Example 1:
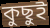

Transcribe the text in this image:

কুছুই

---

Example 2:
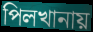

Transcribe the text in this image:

পিলখানায়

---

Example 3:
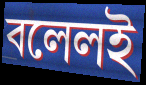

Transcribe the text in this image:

বলেলই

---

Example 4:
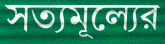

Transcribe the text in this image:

সত্যমূল্যের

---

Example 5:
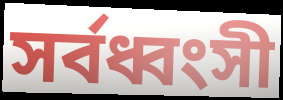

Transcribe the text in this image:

সর্বধ্বংসী